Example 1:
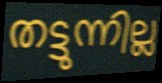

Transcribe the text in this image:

തട്ടുന്നില്ല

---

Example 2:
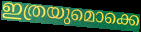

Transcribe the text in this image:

ഇത്രയുമൊക്കെ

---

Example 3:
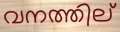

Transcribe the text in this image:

വനത്തില്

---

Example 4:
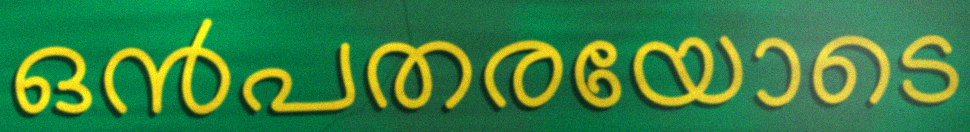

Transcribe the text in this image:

ഒൻപതരയോടെ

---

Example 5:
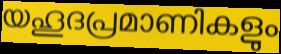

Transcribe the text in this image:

യഹൂദപ്രമാണികളും